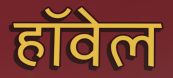
हॉवेल